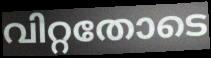
വിറ്റതോടെ